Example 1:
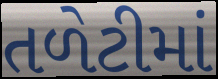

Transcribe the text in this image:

તળેટીમાં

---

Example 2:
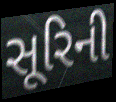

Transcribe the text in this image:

સૂરિની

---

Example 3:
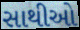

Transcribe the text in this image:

સાથીઓ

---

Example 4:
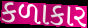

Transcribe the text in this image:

કળાકાર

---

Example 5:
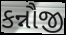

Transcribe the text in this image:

કન્નૌજી